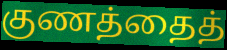
குணத்தைத்